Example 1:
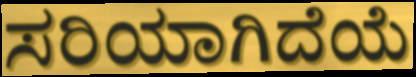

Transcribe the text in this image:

ಸರಿಯಾಗಿದೆಯೆ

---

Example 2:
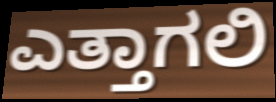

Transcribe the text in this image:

ಎತ್ತಾಗಲಿ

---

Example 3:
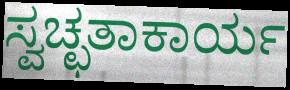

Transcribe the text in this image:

ಸ್ವಚ್ಛತಾಕಾರ್ಯ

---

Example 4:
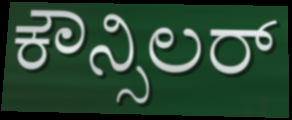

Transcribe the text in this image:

ಕೌನ್ಸಿಲರ್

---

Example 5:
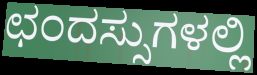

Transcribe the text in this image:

ಛಂದಸ್ಸುಗಳಲ್ಲಿ